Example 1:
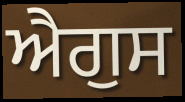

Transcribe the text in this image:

ਐਗੁਸ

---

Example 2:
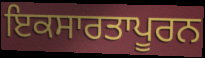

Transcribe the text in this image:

ਇਕਸਾਰਤਾਪੂਰਨ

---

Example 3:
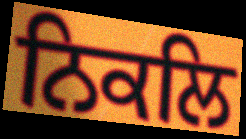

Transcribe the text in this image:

ਨਿਕਲਿ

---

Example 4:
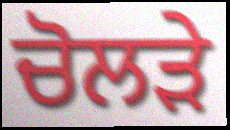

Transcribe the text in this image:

ਚੋਲੜੇ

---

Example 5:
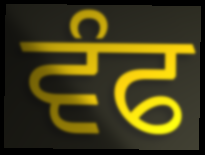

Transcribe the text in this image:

ਵੰਫ